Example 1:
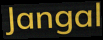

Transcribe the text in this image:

Jangal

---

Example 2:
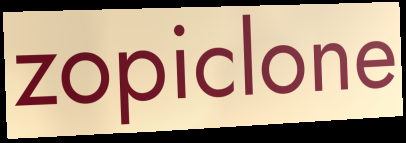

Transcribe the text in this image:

zopiclone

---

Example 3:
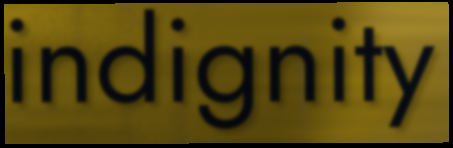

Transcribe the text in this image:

indignity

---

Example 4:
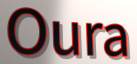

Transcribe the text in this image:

Oura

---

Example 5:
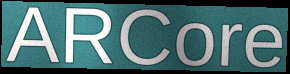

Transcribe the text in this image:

ARCore